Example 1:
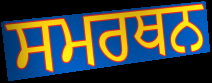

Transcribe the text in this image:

ਸਮਰਥਨ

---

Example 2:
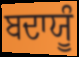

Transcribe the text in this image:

ਬਦਾਯੂੰ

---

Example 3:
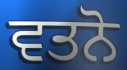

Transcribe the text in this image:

ਵਤਨੋ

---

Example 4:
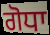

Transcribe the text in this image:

ਗੋਧਾ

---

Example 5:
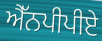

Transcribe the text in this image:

ਐੱਨਪੀਪੀਏ